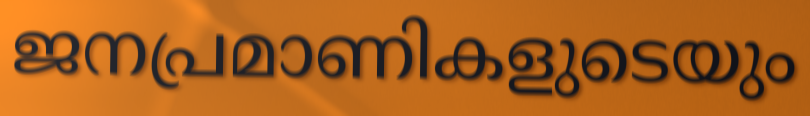
ജനപ്രമാണികളുടെയും